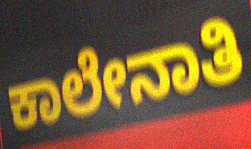
ಕಾಲೇನಾತಿ